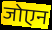
जोएन